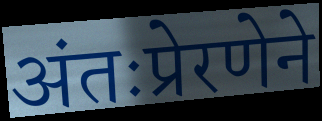
अंतःप्रेरणेने